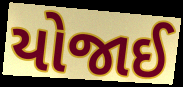
યોજાઈ